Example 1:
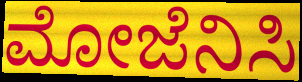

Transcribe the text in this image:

ಮೋಜೆನಿಸಿ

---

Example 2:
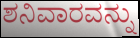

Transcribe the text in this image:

ಶನಿವಾರವನ್ನು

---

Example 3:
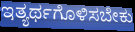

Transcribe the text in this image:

ಇತ್ಯರ್ಥಗೊಳಿಸಬೇಕು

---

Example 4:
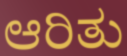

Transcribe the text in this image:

ಆರಿತು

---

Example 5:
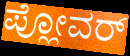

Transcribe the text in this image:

ಪ್ಲೋವರ್